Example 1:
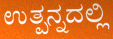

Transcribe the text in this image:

ಉತ್ಪನ್ನದಲ್ಲಿ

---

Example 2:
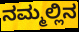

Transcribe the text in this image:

ನಮ್ಮಲ್ಲಿನ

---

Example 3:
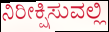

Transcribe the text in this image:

ನಿರೀಕ್ಷಿಸುವಲ್ಲಿ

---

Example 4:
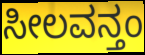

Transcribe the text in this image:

ಸೀಲವನ್ತಂ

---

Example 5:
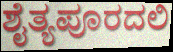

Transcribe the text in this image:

ಶೈತ್ಯಪೂರದಲಿ